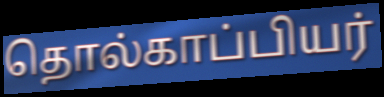
தொல்காப்பியர்